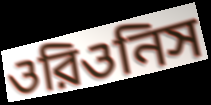
ওরিওনিস